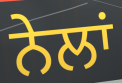
ਨੇਲਾਂ